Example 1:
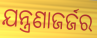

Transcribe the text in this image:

ଯନ୍ତ୍ରଣାଜର୍ଜର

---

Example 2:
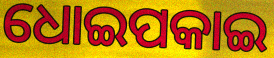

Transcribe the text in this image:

ଧୋଇପକାଇ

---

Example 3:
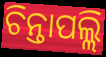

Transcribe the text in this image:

ଚିନ୍ତାପଲ୍ଲି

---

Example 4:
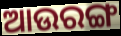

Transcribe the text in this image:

ଆଉରଙ୍ଗ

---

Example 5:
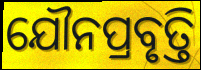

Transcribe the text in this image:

ଯୌନପ୍ରବୃତ୍ତି